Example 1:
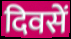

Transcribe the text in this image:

दिवसें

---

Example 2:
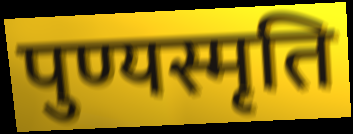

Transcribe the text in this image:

पुण्यस्मृति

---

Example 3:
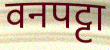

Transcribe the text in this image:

वनपट्टा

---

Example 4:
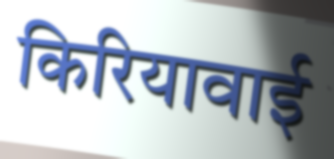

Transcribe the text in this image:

किरियावाई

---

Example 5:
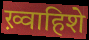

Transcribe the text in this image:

ख़्वाहिशे